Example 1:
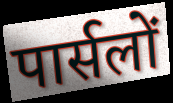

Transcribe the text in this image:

पार्सलों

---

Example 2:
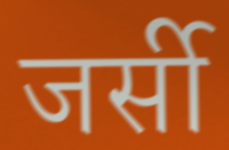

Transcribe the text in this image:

जर्सी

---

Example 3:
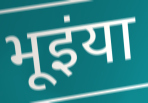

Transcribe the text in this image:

भूइंया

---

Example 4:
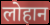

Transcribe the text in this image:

लोहान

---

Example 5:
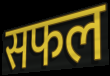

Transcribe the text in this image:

सफल